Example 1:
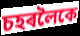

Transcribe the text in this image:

চহৰলৈকে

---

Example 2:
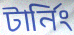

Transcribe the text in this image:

টাৰ্নিং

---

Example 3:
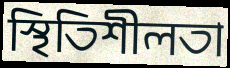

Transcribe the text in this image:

স্থিতিশীলতা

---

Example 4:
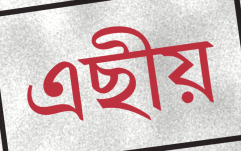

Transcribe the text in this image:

এছীয়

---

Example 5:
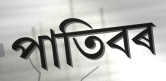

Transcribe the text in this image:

পাতিবৰ